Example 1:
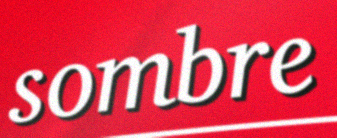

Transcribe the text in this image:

sombre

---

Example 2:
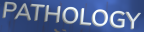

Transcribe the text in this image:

PATHOLOGY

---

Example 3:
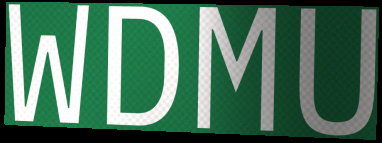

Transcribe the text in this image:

WDMU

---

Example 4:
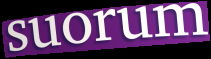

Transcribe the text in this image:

suorum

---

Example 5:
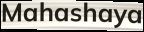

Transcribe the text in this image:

Mahashaya